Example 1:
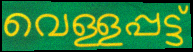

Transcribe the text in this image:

വെള്ളപ്പട്ട്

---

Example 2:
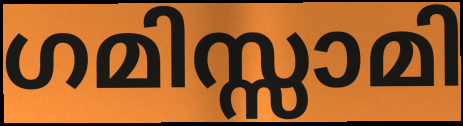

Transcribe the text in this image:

ഗമിസ്സാമി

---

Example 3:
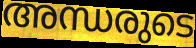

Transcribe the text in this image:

അന്ധരുടെ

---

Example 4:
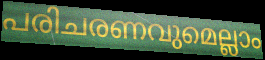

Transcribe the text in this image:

പരിചരണവുമെല്ലാം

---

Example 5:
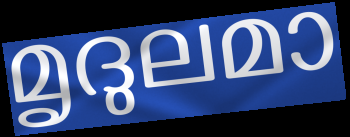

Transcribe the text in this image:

മൃദുലമാ